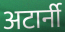
अटार्नी